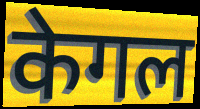
केगल